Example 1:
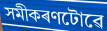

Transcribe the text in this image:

সমীকৰণটোৱে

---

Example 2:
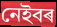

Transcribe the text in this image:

নেইবৰ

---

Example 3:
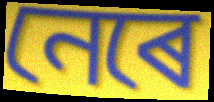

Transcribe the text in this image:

নেৰে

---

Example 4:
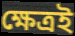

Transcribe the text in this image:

ক্ষেত্ৰই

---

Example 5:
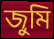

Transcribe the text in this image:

জুমি